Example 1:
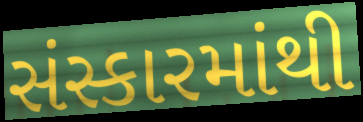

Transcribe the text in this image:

સંસ્કારમાંથી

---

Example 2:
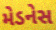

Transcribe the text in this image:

મેડનેસ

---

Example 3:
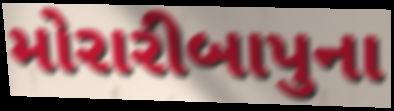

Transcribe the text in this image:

મોરારીબાપુના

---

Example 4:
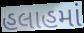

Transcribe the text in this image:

હલાહમાં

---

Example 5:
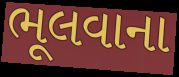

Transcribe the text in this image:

ભૂલવાના